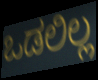
ಒಡಲಿಲ್ಲ